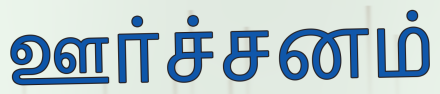
ஊர்ச்சனம்